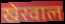
खेरवाल